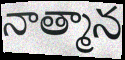
నాత్మాన